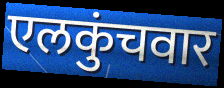
एलकुंचवार